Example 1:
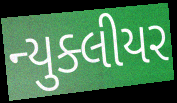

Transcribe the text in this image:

ન્યુક્લીયર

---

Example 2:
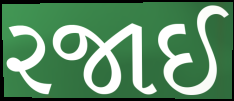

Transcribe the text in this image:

રજાઈ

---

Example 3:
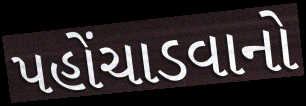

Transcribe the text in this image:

પહોંચાડવાનો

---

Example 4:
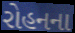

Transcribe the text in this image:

રોહનના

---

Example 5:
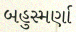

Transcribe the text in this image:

બહુસ્મર્ણા